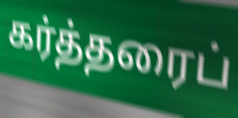
கர்த்தரைப்